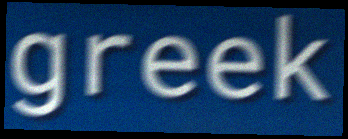
greek